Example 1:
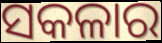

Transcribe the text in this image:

ସକଳାର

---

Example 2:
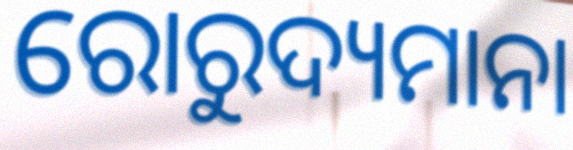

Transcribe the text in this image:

ରୋରୁଦ୍ୟମାନା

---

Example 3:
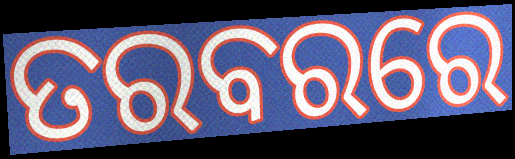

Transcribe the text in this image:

ତରବରରେ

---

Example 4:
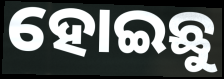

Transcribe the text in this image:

ହୋଇଛୁ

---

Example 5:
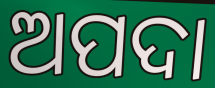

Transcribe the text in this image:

ଅପଦା